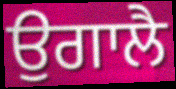
ਉਗਾਲੈ